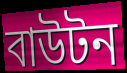
বাউটন